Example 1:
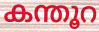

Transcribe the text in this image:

കന്തൂറ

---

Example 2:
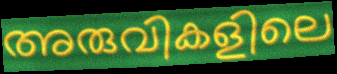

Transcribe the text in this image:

അരുവികളിലെ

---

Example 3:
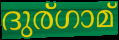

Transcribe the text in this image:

ദുര്ഗാമ്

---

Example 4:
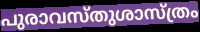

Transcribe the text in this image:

പുരാവസ്തുശാസ്ത്രം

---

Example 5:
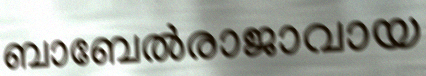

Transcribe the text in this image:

ബാബേൽരാജാവായ